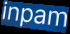
inpam